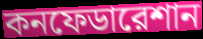
কনফেডারেশান